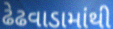
ઢેઢવાડામાંથી